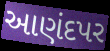
આણંદપર